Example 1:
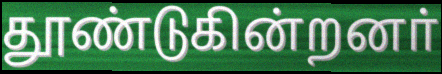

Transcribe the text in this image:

தூண்டுகின்றனர்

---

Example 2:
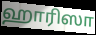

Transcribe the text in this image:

ஹாரிஸா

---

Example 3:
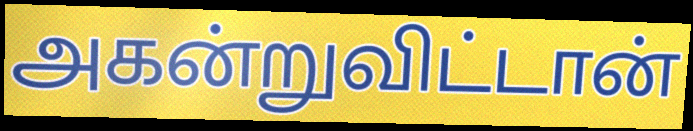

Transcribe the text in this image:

அகன்றுவிட்டான்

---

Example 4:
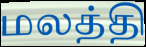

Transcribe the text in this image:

மலத்தி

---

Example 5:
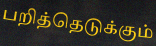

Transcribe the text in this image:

பறித்தெடுக்கும்